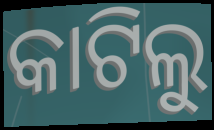
କାଟିଲୁ